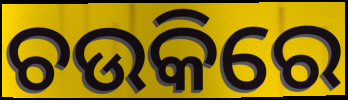
ଚଉକିରେ